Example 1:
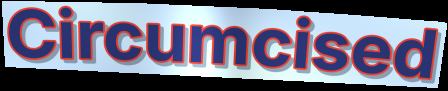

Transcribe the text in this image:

Circumcised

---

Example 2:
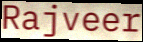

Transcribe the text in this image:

Rajveer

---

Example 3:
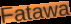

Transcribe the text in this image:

Fatawa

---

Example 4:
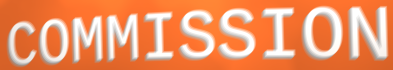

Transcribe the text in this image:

COMMISSION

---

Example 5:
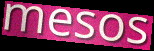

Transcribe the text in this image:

mesos